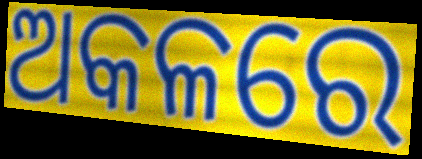
ଅକଳରେ